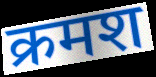
क्रमश